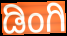
ಡಿಂಗಿ